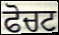
ਫੋਚਟ